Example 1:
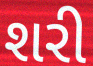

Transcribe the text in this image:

શરી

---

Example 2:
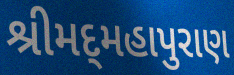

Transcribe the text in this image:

શ્રીમદ્‌મહાપુરાણ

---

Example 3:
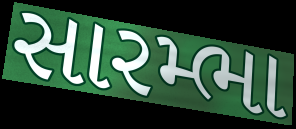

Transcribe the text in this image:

સારમ્ભા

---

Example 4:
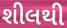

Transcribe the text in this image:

શીલથી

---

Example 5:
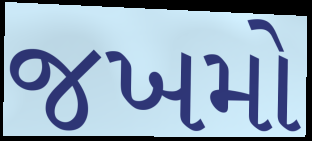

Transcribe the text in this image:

જખમો